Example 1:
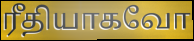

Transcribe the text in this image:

ரீதியாகவோ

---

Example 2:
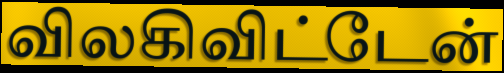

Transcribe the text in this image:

விலகிவிட்டேன்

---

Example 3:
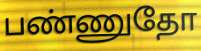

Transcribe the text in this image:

பண்ணுதோ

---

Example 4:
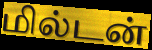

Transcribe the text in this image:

மில்டன்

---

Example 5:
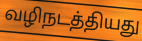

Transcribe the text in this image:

வழிநடத்தியது